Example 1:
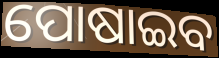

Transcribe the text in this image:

ପୋଷାଇବ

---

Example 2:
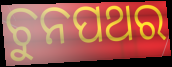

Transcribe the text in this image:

ଚୁନପଥର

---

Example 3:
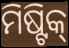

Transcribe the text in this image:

ମିଷ୍ଟିକ୍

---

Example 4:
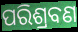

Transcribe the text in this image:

ପରିଶ୍ରବଣ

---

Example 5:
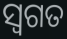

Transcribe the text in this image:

ସ୍ଵଗତ